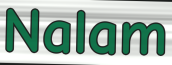
Nalam